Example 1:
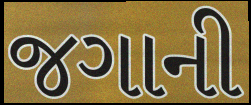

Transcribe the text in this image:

જગાની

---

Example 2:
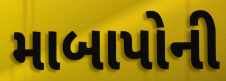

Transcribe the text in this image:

માબાપોની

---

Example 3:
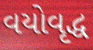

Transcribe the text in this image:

વયોવૃદ્ધ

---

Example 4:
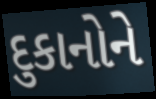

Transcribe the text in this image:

દુકાનોને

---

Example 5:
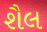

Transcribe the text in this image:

શૈલ